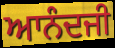
ਆਨੰਦਜੀ